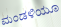
ಮಂಡಳಿಯೂ